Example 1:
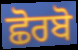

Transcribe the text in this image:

ਛੋਰਬੋ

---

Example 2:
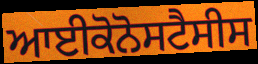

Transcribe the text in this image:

ਆਈਕੋਨੋਸਟੈਸੀਸ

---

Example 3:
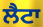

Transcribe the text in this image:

ਲੈਟਾ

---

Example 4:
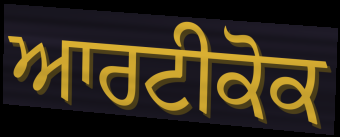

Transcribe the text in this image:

ਆਰਟੀਕੋਕ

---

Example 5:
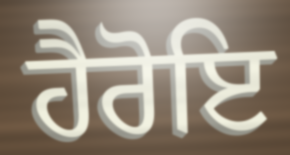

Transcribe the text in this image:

ਹੈਰੋਇ